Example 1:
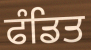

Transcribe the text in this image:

ਫੰਡਿਤ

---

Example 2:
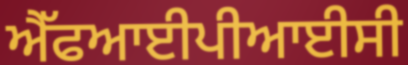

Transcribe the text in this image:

ਐੱਫਆਈਪੀਆਈਸੀ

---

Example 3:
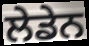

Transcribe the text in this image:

ਲੇਡੇਨ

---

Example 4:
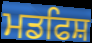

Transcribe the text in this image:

ਮਡਫਿਸ਼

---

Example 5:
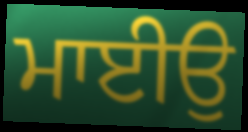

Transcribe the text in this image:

ਮਾਈਉ